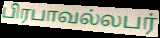
பிரபாவல்லபர்